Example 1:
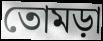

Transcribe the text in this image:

তোমড়া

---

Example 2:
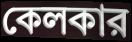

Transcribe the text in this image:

কেলকার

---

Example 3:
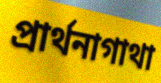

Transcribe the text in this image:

প্রার্থনাগাথা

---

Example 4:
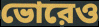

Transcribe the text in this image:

ভোরেও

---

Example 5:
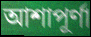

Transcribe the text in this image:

আশাপূর্ণা